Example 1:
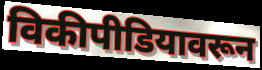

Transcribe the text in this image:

विकीपीडियावरून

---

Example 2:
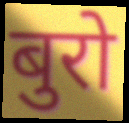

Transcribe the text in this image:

बुरो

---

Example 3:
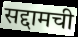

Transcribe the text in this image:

सद्दामची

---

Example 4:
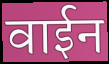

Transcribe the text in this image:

वाईन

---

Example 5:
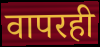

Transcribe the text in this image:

वापरही